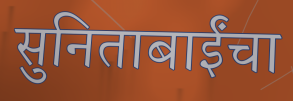
सुनिताबाईंचा